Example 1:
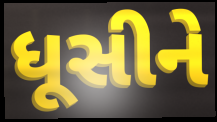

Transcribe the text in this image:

ધૂસીને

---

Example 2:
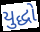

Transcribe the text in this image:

યુદ્ધો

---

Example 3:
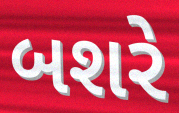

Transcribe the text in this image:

બશરે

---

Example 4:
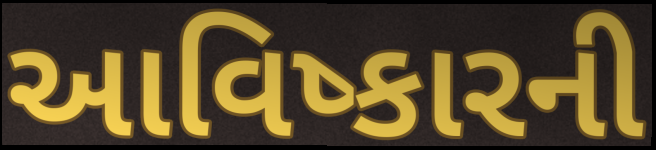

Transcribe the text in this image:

આવિષ્કારની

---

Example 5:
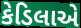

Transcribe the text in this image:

કેડિલાએ